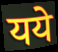
यये